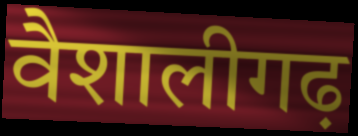
वैशालीगढ़